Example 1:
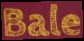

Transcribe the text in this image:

Bale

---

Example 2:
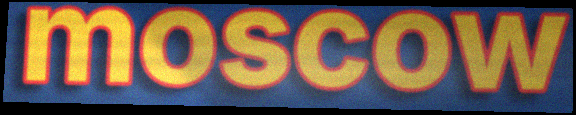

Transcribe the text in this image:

moscow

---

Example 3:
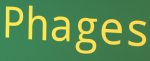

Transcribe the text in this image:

Phages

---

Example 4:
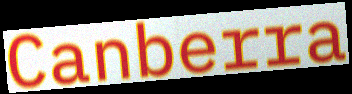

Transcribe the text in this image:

Canberra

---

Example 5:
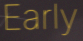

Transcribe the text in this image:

Early